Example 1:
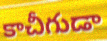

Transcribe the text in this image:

కాచీగుడా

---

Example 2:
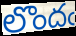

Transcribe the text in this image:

లొందఁ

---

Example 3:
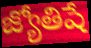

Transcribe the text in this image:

జ్యోతిషే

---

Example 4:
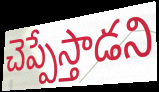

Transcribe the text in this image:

చెప్పేస్తాడని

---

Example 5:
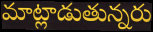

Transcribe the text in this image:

మాట్లాడుతున్నరు